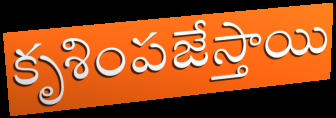
కృశింపజేస్తాయి